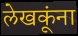
लेखकूंना